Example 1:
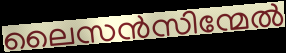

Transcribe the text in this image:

ലൈസൻസിന്മേൽ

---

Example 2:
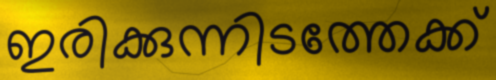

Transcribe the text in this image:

ഇരിക്കുന്നിടത്തേക്ക്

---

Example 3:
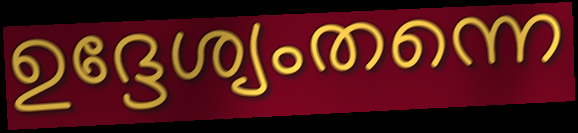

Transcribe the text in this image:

ഉദ്ദേശ്യംതന്നെ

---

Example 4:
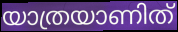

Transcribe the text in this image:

യാത്രയാണിത്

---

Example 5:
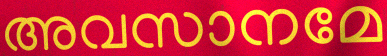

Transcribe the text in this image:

അവസാനമേ